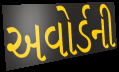
અવોર્ડની